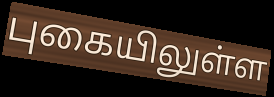
புகையிலுள்ள